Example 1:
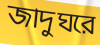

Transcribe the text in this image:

জাদুঘরে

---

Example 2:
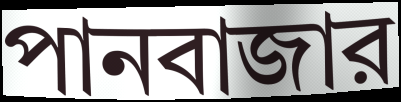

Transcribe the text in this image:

পানবাজার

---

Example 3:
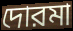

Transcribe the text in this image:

দোরমা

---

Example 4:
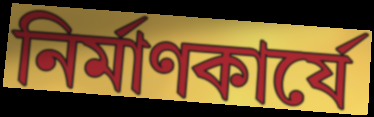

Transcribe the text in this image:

নির্মাণকার্যে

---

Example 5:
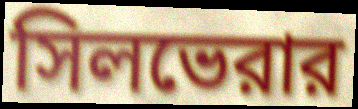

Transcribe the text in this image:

সিলভেরার